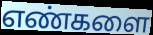
எண்களை